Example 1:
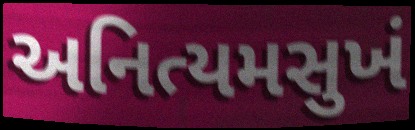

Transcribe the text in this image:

અનિત્યમસુખં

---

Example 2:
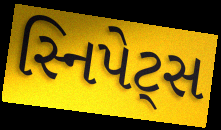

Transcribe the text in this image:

સ્નિપેટ્સ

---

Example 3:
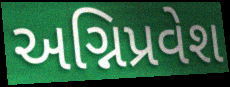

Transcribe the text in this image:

અગ્નિપ્રવેશ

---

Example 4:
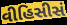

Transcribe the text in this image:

વીહિસીસં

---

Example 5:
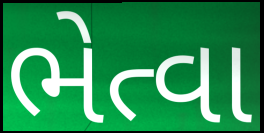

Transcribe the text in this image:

ભેત્વા